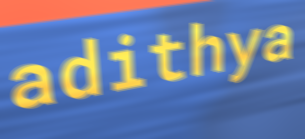
adithya